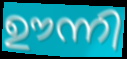
ഊന്നി